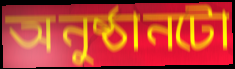
অনুষ্ঠানটো